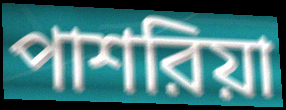
পাশরিয়া